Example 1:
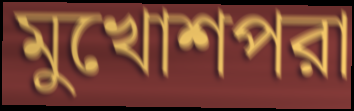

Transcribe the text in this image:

মুখোশপরা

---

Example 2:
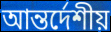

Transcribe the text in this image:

আন্তর্দেশীয়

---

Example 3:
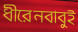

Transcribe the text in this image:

ধীরেনবাবুই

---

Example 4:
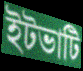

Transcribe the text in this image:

ইটভাটি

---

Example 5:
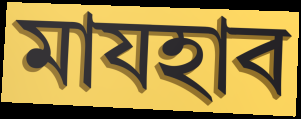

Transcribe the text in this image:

মাযহাব